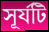
সূর্যটি